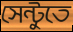
সেন্টুতে